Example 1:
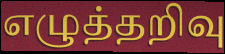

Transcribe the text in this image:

எழுத்தறிவு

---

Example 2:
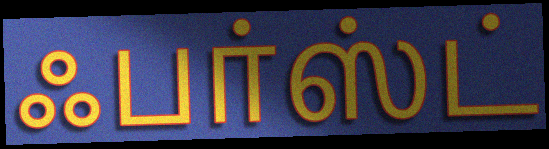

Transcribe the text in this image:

ஃபர்ஸ்ட்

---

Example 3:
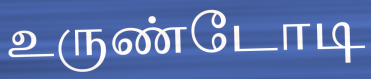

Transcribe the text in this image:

உருண்டோடி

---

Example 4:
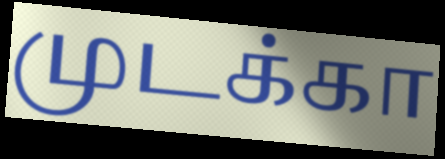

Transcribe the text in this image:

முடக்கா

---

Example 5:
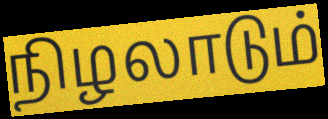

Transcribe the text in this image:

நிழலாடும்